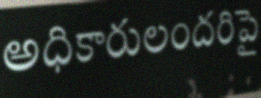
అధికారులందరిపై